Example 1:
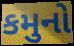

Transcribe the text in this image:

કમુનો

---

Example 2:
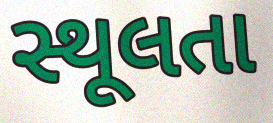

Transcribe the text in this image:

સ્થૂલતા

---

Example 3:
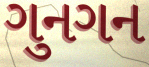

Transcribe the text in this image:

ગુનગન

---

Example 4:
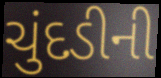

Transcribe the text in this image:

ચુંદડીની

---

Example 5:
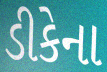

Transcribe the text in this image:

ડીકેના